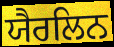
ਯੈਰਲਿਨ